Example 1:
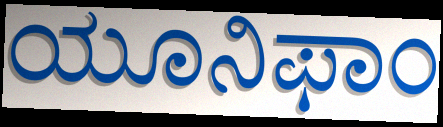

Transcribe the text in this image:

ಯೂನಿಫಾಂ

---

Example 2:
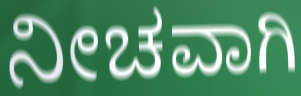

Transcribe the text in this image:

ನೀಚವಾಗಿ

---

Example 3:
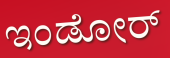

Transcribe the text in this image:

ಇಂಡೋರ್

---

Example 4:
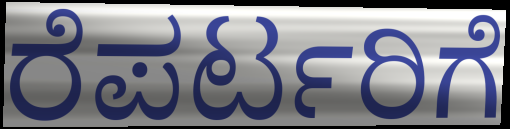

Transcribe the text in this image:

ರೆಪರ್ಟರಿಗೆ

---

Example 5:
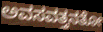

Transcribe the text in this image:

ಅವಸವತ್ತನತೋ